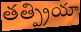
తత్ప్రియా